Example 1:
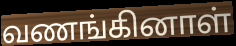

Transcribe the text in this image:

வணங்கினாள்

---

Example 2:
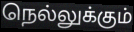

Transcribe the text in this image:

நெல்லுக்கும்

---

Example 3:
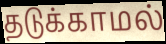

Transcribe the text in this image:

தடுக்காமல்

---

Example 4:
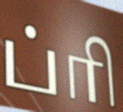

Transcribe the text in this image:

ப்ரி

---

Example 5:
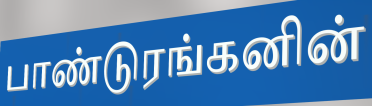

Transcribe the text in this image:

பாண்டுரங்கனின்